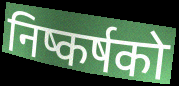
निष्कर्षको